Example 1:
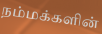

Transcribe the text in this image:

நம்மக்களின்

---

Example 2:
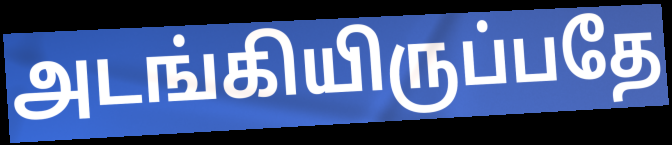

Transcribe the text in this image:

அடங்கியிருப்பதே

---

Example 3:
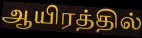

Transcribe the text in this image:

ஆயிரத்தில்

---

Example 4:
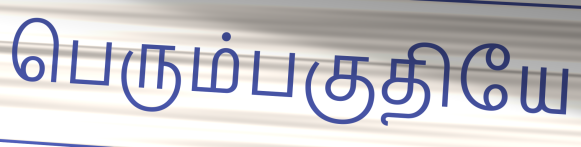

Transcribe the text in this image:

பெரும்பகுதியே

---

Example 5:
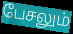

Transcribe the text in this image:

பேசலும்